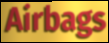
Airbags